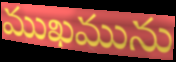
ముఖమును